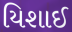
યિશાઈ